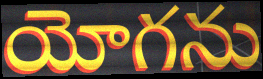
యోగను